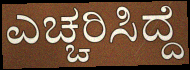
ಎಚ್ಚರಿಸಿದ್ದೆ